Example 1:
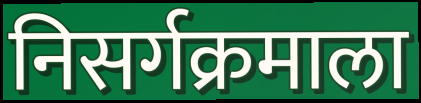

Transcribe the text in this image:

निसर्गक्रमाला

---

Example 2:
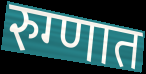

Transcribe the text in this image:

रुग्णात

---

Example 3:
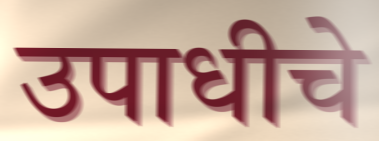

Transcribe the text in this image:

उपाधीचे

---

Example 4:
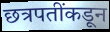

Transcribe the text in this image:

छत्रपतींकडून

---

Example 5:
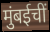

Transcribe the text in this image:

मुंबईचीं